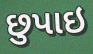
છુપાઇ